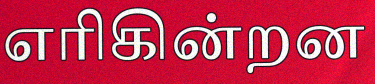
எரிகின்றன